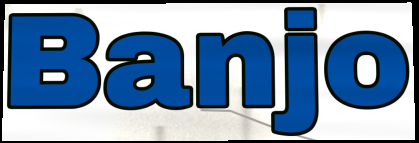
Banjo